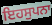
ਇਹਸੁਪਨਾ